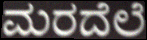
ಮರದೆಲೆ